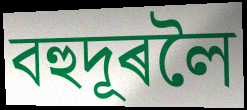
বহুদূৰলৈ